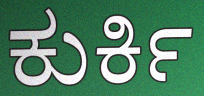
ಕುರ್ಕಿ